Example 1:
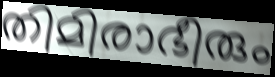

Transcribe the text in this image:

തിമിരാഭീരും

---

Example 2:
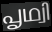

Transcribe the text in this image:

പൃഥ്വി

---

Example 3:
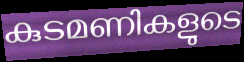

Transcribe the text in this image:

കുടമണികളുടെ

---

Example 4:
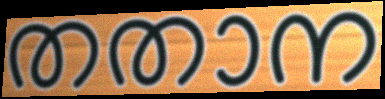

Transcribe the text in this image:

തതാന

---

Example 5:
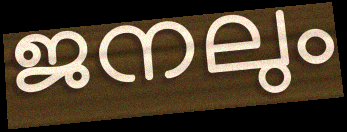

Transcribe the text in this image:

ജനലും